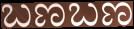
ಬಣಬಣ